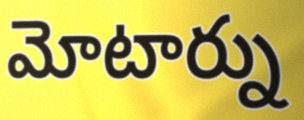
మోటార్ను